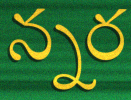
న్నర